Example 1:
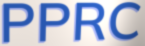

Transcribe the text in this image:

PPRC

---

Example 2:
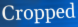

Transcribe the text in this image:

Cropped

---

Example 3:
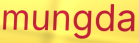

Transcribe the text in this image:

mungda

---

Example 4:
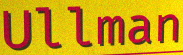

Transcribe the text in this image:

Ullman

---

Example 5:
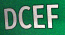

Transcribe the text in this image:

DCEF